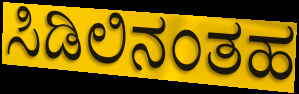
ಸಿಡಿಲಿನಂತಹ